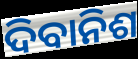
ଦିବାନିଶ